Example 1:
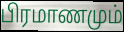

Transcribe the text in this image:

பிரமாணமும்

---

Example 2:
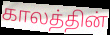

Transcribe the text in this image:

காலத்தின்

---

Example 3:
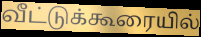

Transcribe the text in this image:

வீட்டுக்கூரையில்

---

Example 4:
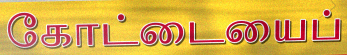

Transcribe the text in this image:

கோட்டையைப்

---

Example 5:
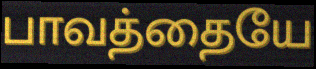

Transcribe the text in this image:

பாவத்தையே